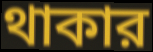
থাকার